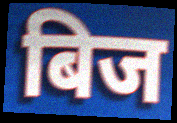
बिज